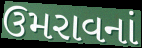
ઉમરાવનાં